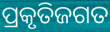
ପ୍ରକୃତିଜଗତ